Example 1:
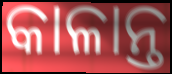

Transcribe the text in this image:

କାଳାନ୍ତ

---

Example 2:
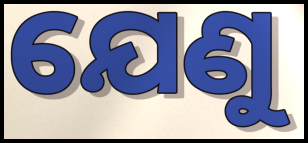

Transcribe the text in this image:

ଯେଣୁ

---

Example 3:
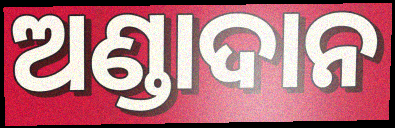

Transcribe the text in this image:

ଅଣ୍ଡାଦାନ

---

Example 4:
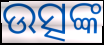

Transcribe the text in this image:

ଉତ୍ସଙ୍କ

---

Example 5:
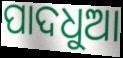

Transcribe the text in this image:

ପାଦଧୁଆ